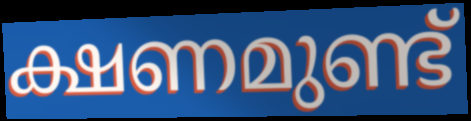
ക്ഷണമുണ്ട്